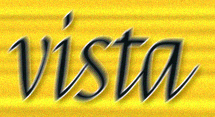
vista